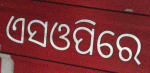
ଏସଓପିରେ